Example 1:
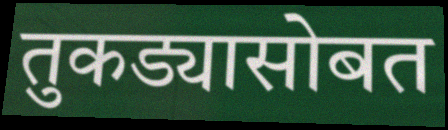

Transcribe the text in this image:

तुकड्यासोबत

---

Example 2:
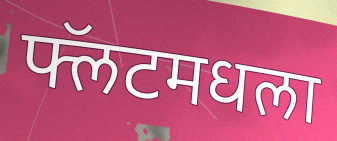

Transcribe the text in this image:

फ्लॅटमधला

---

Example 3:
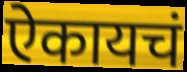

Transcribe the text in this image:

ऐकायचं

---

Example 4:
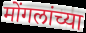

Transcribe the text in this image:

मोंगलांच्या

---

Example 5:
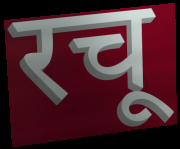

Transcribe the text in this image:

रचू